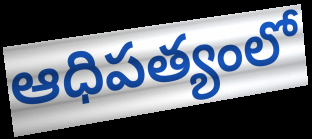
ఆధిపత్యంలో